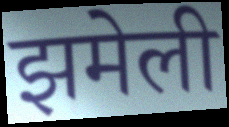
झमेली